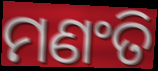
ମଣଂତି